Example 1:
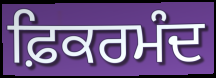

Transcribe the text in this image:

ਫ਼ਿਕਰਮੰਦ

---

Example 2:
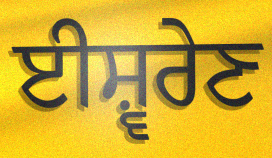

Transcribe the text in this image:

ਈਸ਼੍ਵਰੇਣ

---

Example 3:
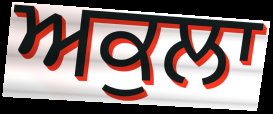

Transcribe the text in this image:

ਅਕੁਲਾ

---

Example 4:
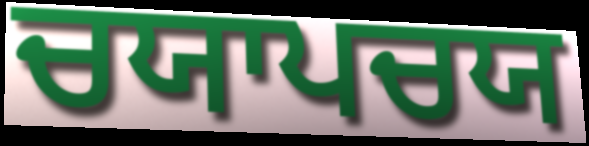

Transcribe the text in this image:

ਚਯਾਪਚਯ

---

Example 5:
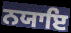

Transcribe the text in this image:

ਨਯਾਇ